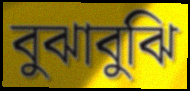
বুঝাবুঝি